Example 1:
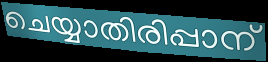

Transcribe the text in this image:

ചെയ്യാതിരിപ്പാന്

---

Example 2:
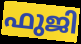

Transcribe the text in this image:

ഫുജി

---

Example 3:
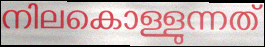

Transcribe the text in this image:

നിലകൊള്ളുന്നത്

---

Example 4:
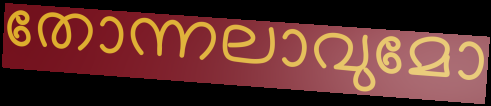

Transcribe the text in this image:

തോന്നലാവുമോ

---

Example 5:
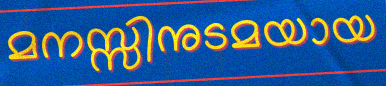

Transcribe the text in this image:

മനസ്സിനുടമയായ